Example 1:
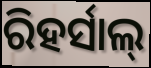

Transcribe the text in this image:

ରିହର୍ସାଲ୍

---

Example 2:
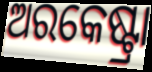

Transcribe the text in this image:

ଅରକେଷ୍ଟ୍ରା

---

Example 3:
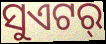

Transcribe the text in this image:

ସୁଏଟର୍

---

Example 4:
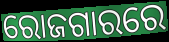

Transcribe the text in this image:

ରୋଜଗାରରେ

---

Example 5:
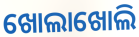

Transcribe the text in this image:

ଖୋଲାଖୋଲି